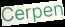
Cerpen